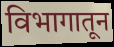
विभागातून